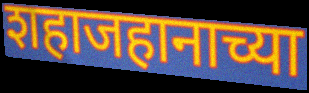
शहाजहानाच्या